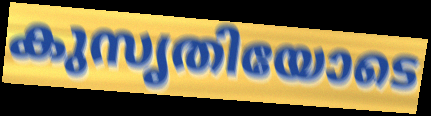
കുസൃതിയോടെ